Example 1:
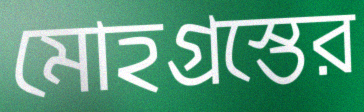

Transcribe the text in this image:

মোহগ্রস্তের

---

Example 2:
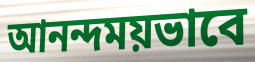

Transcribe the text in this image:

আনন্দময়ভাবে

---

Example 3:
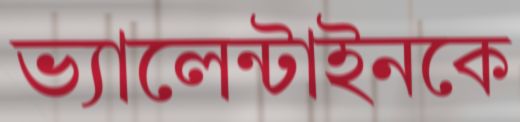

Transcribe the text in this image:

ভ্যালেন্টাইনকে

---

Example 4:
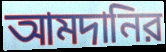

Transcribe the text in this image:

আমদানির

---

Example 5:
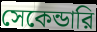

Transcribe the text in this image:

সেকেন্ডারি